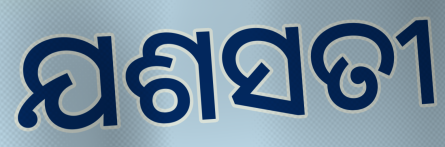
ଯଶସତୀ